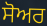
ਸੋਅਰ